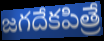
జగదేకపిత్రే